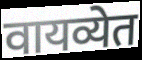
वायव्येत